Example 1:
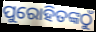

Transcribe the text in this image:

ପୁରୋହିତଙ୍କଠୁଁ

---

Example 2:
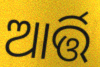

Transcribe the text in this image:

ଆର୍ତ୍ତି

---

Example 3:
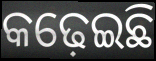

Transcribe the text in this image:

କଢ଼େଇଛି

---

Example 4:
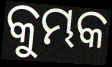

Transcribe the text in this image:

କୁମ୍ଭକ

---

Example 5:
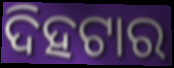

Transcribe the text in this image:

ଦିହଟାର